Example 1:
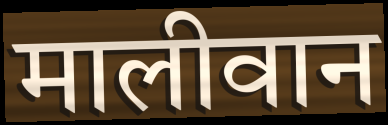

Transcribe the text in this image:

मालीवान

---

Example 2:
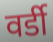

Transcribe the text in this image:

वर्डी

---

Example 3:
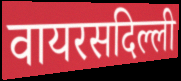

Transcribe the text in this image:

वायरसदिल्ली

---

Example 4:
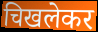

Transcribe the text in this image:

चिखलेकर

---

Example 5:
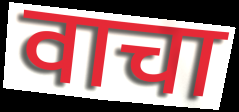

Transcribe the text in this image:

वाचा